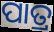
ପାତ୍ର